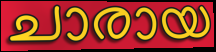
ചാരായ